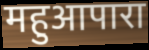
महुआपारा